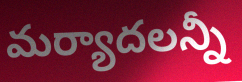
మర్యాదలన్నీ